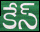
కేస్